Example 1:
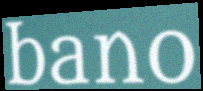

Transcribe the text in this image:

bano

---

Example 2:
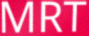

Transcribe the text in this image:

MRT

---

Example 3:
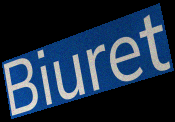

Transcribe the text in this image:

Biuret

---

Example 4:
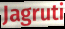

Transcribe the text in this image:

Jagruti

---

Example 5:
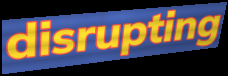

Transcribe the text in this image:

disrupting